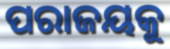
ପରାଜୟକୁ